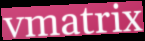
vmatrix